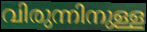
വിരുന്നിനുള്ള